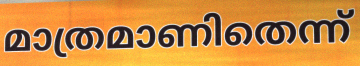
മാത്രമാണിതെന്ന്